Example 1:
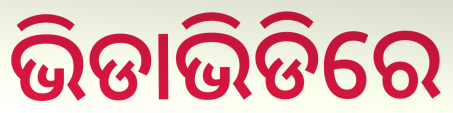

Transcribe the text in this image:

ଭିଡାଭିଡିରେ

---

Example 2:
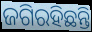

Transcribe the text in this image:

ଜଗିରହିଛନ୍ତି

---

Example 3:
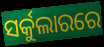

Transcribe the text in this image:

ସର୍କୁଲାରରେ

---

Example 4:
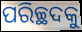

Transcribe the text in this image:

ପରିଚ୍ଛଦକୁ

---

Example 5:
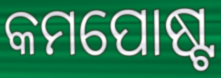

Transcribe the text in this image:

କମପୋଷ୍ଟ